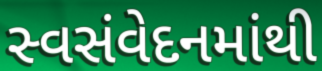
સ્વસંવેદનમાંથી